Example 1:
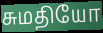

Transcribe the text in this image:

சுமதியோ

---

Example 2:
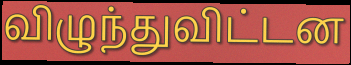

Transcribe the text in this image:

விழுந்துவிட்டன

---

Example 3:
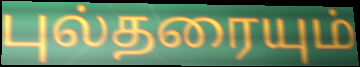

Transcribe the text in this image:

புல்தரையும்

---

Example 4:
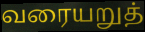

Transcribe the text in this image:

வரையறுத்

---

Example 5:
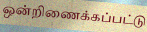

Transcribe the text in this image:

ஒன்றிணைக்கப்பட்டு